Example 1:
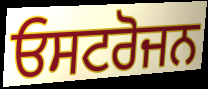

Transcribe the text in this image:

ਓਸਟਰੋਜਨ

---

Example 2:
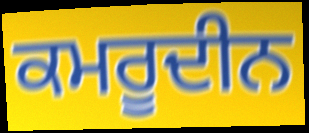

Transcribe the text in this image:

ਕਮਰੂਦੀਨ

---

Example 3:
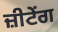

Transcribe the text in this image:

ਜ਼ੀਟੇਂਗ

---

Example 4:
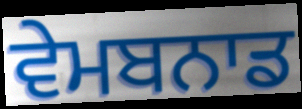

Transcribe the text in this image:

ਵੇਮਬਨਾਡ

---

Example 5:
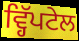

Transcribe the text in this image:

ਵ੍ਹਿੱਪਟੇਲ